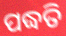
ପଦ୍ଧତି